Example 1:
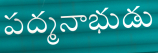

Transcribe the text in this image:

పద్మనాభుడు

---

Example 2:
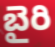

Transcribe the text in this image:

బైరి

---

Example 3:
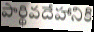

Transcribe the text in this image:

పార్థివదేహానికి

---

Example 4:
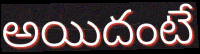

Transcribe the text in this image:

అయిదంటే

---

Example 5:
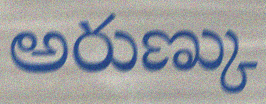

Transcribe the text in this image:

అరుణ్కు